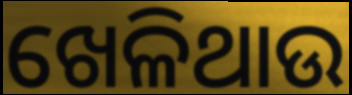
ଖେଳିଥାଉ